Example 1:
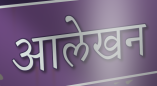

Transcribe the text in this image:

आलेखन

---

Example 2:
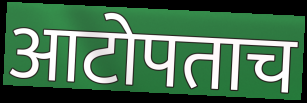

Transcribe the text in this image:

आटोपताच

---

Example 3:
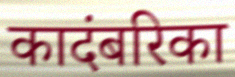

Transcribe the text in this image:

कादंबरिका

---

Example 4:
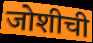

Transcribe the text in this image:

जोशीची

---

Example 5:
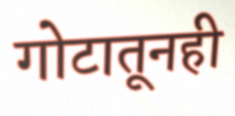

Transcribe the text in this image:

गोटातूनही